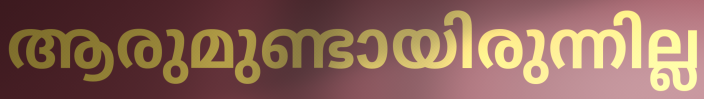
ആരുമുണ്ടായിരുന്നില്ല